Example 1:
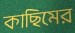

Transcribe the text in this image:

কাছিমের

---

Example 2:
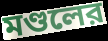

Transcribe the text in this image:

মণ্ডলের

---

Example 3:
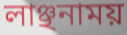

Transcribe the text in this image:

লাঞ্ছনাময়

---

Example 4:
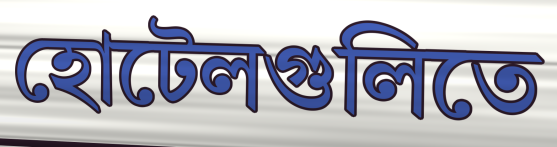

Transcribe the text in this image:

হোটেলগুলিতে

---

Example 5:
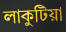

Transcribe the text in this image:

লাকুটিয়া